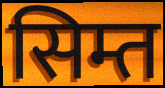
सिम्त